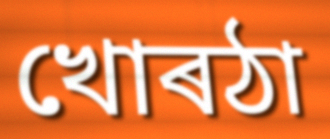
খোৰঠা